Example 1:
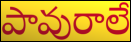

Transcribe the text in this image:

పావురాలే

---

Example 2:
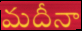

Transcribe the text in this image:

మదీనా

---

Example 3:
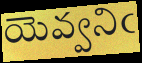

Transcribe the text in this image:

యెవ్వనిఁ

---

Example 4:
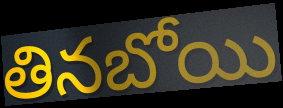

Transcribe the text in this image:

తినబోయి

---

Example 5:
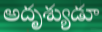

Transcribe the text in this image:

అదృశ్యుడూ